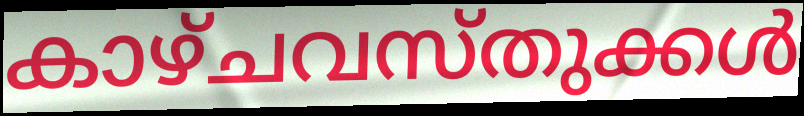
കാഴ്ചവസ്തുക്കൾ